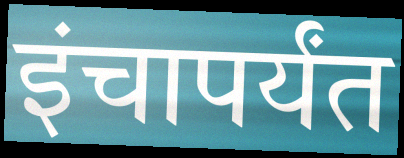
इंचापर्यंत